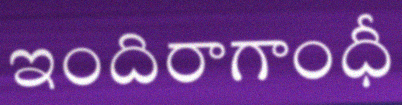
ఇందిరాగాంధీ